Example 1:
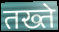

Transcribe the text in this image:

तख्ते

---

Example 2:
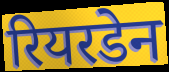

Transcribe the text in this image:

रियरडेन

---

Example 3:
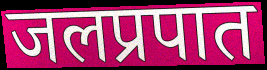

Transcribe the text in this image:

जलप्रपात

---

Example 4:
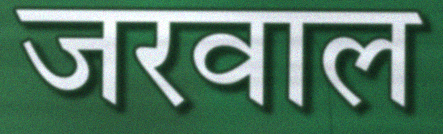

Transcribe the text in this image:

जरवाल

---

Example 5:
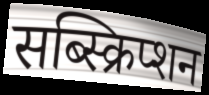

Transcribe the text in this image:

सब्स्क्रिप्शन